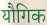
यौगिक